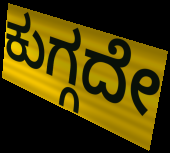
ಕುಗ್ಗದೇ